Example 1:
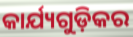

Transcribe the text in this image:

କାର୍ଯ୍ୟଗୁଡ଼ିକର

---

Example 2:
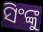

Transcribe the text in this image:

ସିଂଙ୍କୁ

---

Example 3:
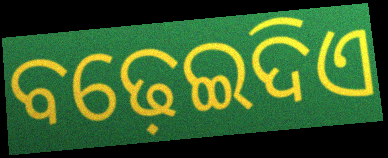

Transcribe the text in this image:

ବଢ଼େଇଦିଏ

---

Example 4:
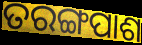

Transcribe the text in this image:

ତରଙ୍ଗପାଶ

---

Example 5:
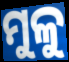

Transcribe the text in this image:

ମୁଳୁ